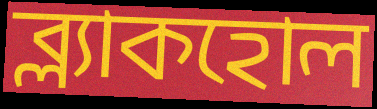
ব্ল্যাকহোল